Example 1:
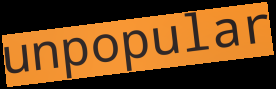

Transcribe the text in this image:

unpopular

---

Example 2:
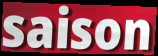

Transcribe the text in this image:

saison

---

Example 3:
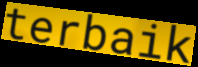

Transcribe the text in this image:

terbaik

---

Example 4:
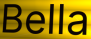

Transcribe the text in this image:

Bella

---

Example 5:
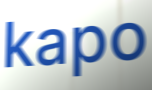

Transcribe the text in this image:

kapo